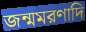
জন্মমরণাদি